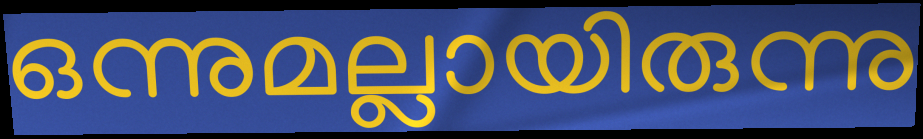
ഒന്നുമല്ലായിരുന്നു